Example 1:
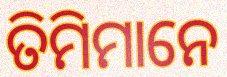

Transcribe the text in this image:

ତିମିମାନେ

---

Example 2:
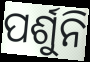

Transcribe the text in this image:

ପର୍ଶୁନି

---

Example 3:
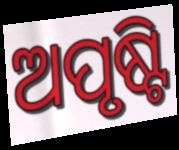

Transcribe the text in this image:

ଅପୃଷ୍ଟି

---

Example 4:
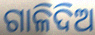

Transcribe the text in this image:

ଗାଳିଦିଅ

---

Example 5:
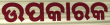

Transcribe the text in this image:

ଉପକାରକ